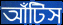
আঁটিস